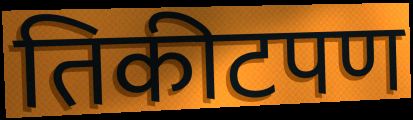
तिकीटपण